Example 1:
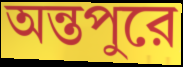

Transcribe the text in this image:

অন্তপুরে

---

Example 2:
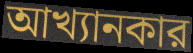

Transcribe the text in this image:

আখ্যানকার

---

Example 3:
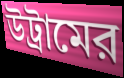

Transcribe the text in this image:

উট্রামের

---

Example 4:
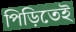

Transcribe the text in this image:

পিড়িতেই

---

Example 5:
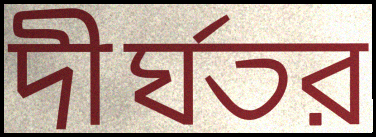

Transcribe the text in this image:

দীর্ঘতর